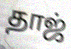
தாஜ்